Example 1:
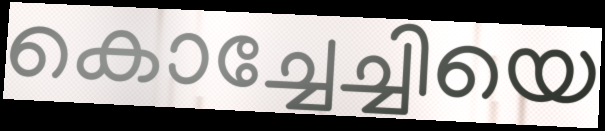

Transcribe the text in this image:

കൊച്ചേച്ചിയെ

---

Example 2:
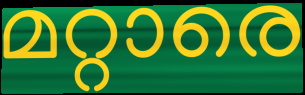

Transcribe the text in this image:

മറ്റാരെ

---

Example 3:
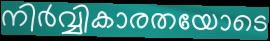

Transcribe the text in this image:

നിർവ്വികാരതയോടെ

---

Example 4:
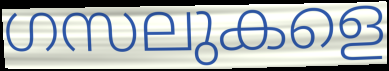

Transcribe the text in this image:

ഗസലുകളെ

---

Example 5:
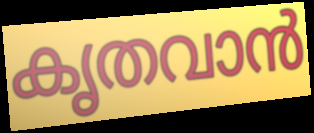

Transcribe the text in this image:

കൃതവാൻ